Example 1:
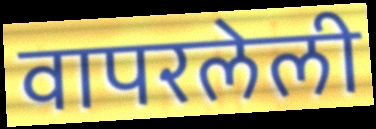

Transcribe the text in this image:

वापरलेली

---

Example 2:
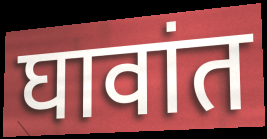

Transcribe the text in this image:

घावांत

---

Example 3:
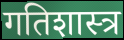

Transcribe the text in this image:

गतिशास्त्र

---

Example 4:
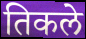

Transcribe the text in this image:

तिकले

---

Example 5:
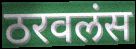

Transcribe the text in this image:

ठरवलंस